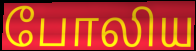
போலிய